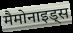
मैमोनाइड्स